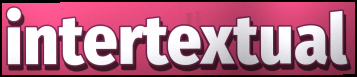
intertextual